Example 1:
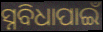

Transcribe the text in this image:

ସ୍ନବିଧାପାଇଁ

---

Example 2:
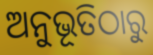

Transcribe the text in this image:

ଅନୁଭୂତିଠାରୁ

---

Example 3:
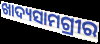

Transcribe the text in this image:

ଖାଦ୍ୟସାମଗ୍ରୀର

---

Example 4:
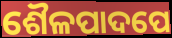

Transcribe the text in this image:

ଶୈଳପାଦପେ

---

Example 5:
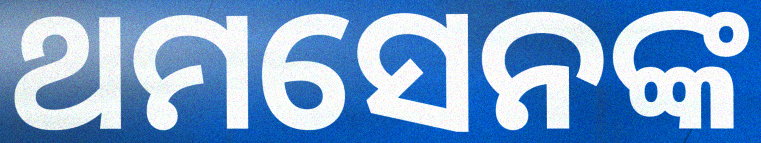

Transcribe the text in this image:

ଥମସେନଙ୍କ